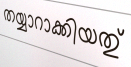
തയ്യാറാക്കിയതു്